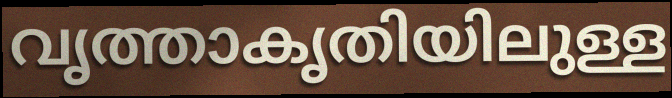
വൃത്താകൃതിയിലുള്ള